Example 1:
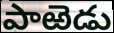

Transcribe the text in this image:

పాఱెడు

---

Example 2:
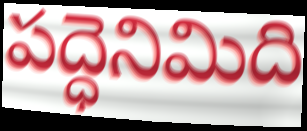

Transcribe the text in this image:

పద్ధెనిమిది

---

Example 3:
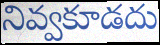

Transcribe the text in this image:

నివ్వకూడదు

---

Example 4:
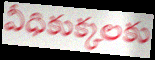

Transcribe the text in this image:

వీధికుక్కలకు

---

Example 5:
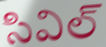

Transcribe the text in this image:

సివిల్